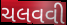
ચલવવી